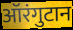
ऑरंगुटान